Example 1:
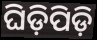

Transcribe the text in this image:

ଘିଡ଼ିପିଡ଼ି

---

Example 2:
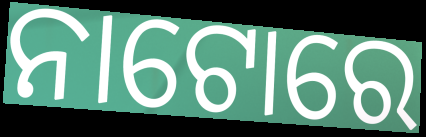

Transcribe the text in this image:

ନାଟୋରେ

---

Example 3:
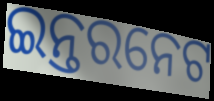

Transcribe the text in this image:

ଇନ୍ତରନେଟ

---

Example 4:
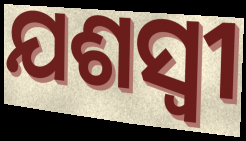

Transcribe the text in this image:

ଯଶସ୍ଵୀ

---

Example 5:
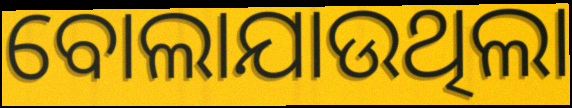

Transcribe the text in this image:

ବୋଲାଯାଉଥିଲା